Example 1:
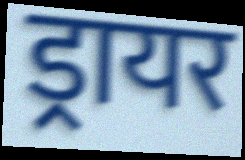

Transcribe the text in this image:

ड्रायर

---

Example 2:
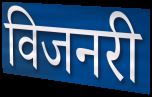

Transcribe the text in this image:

विजनरी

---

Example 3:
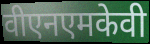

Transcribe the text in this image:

वीएनएमकेवी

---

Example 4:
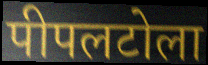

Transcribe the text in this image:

पीपलटोला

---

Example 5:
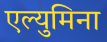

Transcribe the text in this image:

एल्युमिना